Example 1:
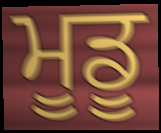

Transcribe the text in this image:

ਮੂਡੂ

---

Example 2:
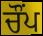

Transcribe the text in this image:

ਚੌਂਪ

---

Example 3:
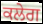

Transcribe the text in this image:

ਕਲੇਗ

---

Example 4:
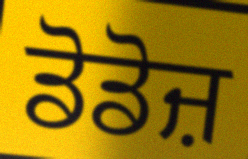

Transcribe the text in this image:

ਡੋਡੋਜ਼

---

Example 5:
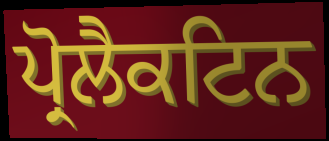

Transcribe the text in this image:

ਪ੍ਰੋਲੈਕਟਿਨ